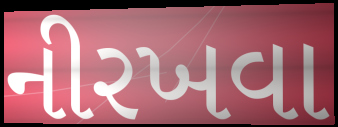
નીરખવા